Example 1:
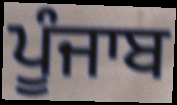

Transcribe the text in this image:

ਪੂੰਜਾਬ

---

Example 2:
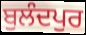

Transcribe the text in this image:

ਬੁਲੰਦਪੁਰ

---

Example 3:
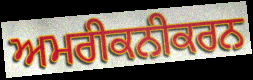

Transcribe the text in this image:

ਅਮਰੀਕਨੀਕਰਨ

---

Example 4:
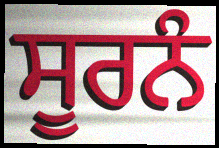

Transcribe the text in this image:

ਸੂਰਨੰ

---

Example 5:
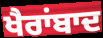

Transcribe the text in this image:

ਖੈਰਾਂਬਾਦ